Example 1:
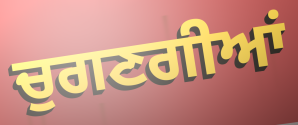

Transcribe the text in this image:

ਚੁਗਣਗੀਆਂ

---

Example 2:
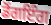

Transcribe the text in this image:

ਡੋਂਗਇੰਗ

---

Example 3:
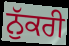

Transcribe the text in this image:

ਨੁੱਕਰੀ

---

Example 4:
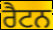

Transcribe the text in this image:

ਰੈਟਨ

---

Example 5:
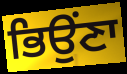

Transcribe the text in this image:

ਭਿਉਂਣਾ